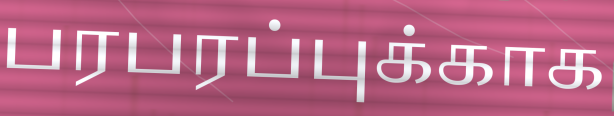
பரபரப்புக்காக